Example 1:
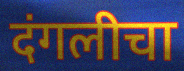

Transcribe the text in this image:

दंगलीचा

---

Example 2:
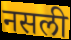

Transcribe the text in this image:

नसली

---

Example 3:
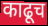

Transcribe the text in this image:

काढूच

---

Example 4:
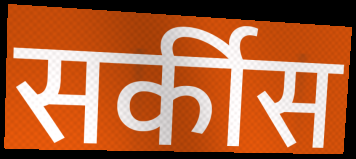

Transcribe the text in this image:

सर्कीस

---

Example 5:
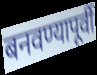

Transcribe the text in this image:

बनवण्यापूर्वी